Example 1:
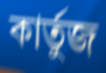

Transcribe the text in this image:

কার্তুজ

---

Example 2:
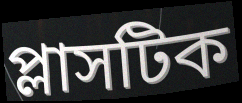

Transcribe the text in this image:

প্লাসটিক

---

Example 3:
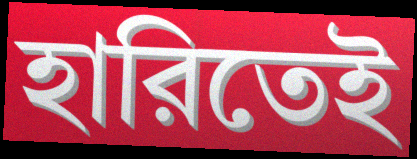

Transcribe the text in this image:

হারিতেই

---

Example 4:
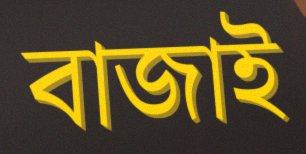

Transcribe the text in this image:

বাজাই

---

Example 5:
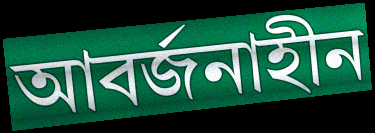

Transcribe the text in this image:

আবর্জনাহীন